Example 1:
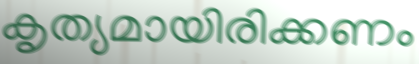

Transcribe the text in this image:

കൃത്യമായിരിക്കണം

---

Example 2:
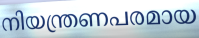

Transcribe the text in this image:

നിയന്ത്രണപരമായ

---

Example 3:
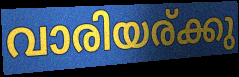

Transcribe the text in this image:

വാരിയര്ക്കു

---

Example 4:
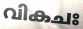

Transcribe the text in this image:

വികചഃ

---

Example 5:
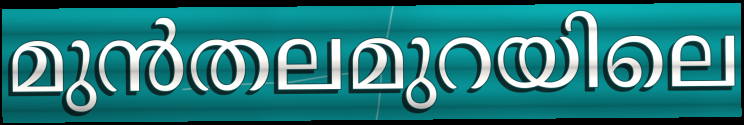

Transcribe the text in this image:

മുൻതലമുറയിലെ